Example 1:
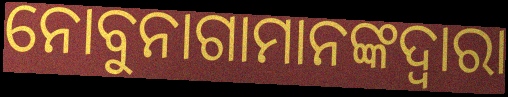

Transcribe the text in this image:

ନୋବୁନାଗାମାନଙ୍କଦ୍ୱାରା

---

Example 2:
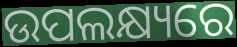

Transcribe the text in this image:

ଉପଲକ୍ଷ୍ୟରେ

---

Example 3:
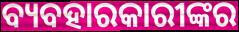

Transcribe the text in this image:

ବ୍ୟବହାରକାରୀଙ୍କର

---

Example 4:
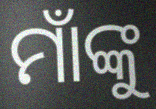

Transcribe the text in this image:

ମାଁଙ୍କୁ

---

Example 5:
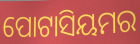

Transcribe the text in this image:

ପୋଟାସିୟମର